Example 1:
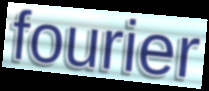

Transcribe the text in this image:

fourier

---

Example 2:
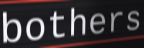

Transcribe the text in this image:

bothers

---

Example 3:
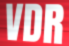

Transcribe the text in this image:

VDR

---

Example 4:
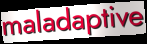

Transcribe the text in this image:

maladaptive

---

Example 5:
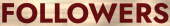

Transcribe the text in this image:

FOLLOWERS